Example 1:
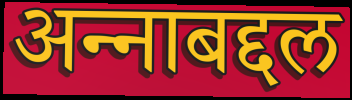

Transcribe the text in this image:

अन्‍नाबद्दल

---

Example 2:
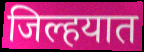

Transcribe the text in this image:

जिल्हयात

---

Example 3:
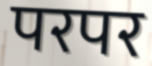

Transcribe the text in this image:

परपर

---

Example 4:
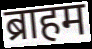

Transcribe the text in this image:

ब्राहम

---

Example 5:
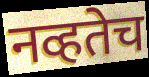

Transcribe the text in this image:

नव्हतेच